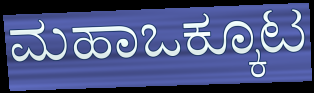
ಮಹಾಒಕ್ಕೂಟ